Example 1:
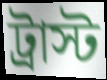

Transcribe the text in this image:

ট্রাস্ট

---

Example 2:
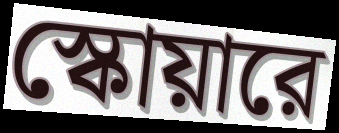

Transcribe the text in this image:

স্কোয়ারে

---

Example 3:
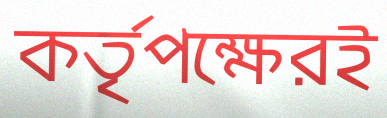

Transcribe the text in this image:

কর্তৃপক্ষেরই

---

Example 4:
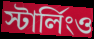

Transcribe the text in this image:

স্টার্লিংও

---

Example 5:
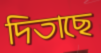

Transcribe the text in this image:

দিতাছে